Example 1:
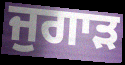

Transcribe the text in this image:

ਜੁਗਾੜ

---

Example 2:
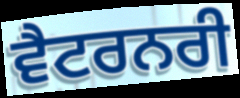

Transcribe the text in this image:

ਵੈਟਰਨਰੀ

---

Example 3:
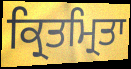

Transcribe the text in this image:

ਕ੍ਰਿਤਮ੍ਰਿਤਾ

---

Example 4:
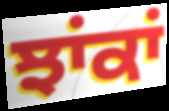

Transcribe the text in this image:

ਝਾਂਕਾਂ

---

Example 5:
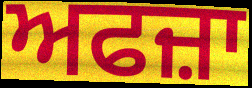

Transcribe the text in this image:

ਅਫਜ਼ਾ